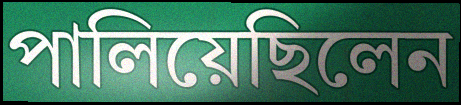
পালিয়েছিলেন